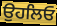
ਉਹਲਿਓ